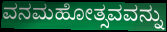
ವನಮಹೋತ್ಸವವನ್ನು